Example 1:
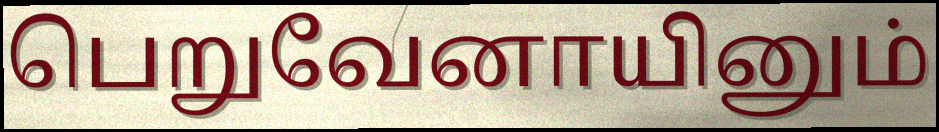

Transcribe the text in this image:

பெறுவேனாயினும்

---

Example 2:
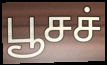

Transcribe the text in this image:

பூசச்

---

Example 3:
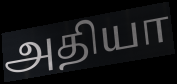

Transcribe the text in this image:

அதியா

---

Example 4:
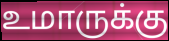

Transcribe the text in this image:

உமாருக்கு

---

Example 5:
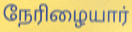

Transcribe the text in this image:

நேரிழையார்